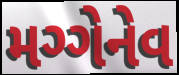
મગ્ગેનેવ